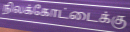
நிலக்கோட்டைக்கு